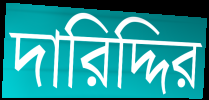
দারিদ্দির